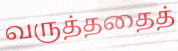
வருத்ததைத்